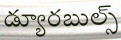
డ్యూరబుల్స్